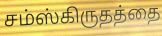
சம்ஸ்கிருதத்தை